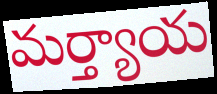
మర్త్యాయ